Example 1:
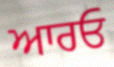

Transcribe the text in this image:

ਆਰਓ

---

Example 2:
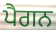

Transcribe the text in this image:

ਪੈਗਨ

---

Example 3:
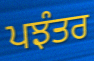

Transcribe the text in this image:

ਪਝੰਤਰ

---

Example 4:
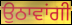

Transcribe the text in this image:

ਉਠਾਵਾਂਗੀ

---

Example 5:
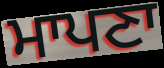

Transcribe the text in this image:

ਮਾਪਣਾ